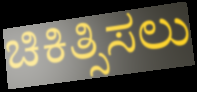
ಚಿಕಿತ್ಸಿಸಲು